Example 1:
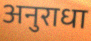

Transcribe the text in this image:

अनुराधा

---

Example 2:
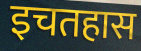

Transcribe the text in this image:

इचतहास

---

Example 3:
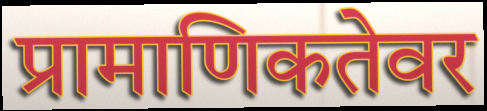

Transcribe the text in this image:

प्रामाणिकतेवर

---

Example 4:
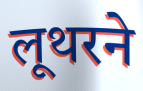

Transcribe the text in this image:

लूथरने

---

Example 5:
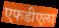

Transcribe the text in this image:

एफडीएला